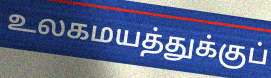
உலகமயத்துக்குப்